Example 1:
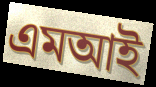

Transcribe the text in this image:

এমআই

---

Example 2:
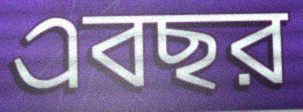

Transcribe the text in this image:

এবছর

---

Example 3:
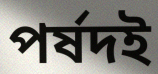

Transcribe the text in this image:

পর্ষদই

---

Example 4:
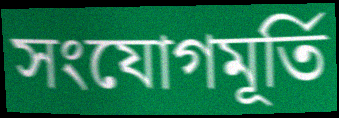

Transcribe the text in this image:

সংযোগমূর্তি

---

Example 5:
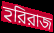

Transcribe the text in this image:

হরিরাজ